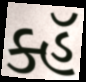
ક્હૅ